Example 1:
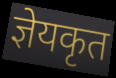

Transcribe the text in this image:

ज्ञेयकृत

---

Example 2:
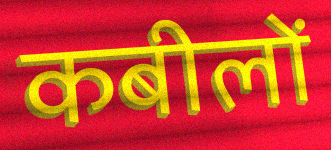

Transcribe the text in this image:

कबीलों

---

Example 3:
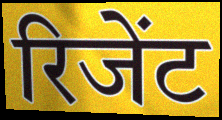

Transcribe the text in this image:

रिजेंट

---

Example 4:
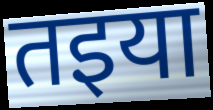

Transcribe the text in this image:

तइया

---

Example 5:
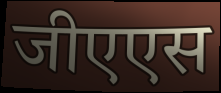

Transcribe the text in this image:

जीएएस